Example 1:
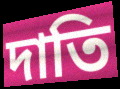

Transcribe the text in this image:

দাতি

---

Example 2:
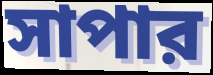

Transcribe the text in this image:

সাপার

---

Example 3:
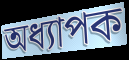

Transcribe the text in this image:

অধ্যাপক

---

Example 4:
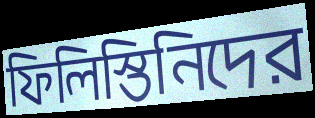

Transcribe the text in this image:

ফিলিস্তিনিদের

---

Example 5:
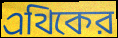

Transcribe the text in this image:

এথিকের